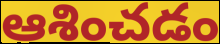
ఆశించడం